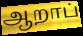
ஆறாப்